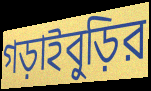
গড়াইবুড়ির